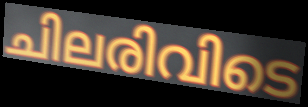
ചിലരിവിടെ